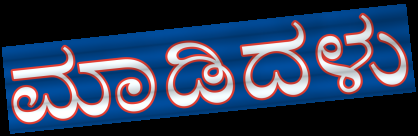
ಮಾಡಿದಳು